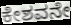
ಕೇಶವನೇ